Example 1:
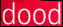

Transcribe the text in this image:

dood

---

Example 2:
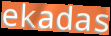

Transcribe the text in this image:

ekadas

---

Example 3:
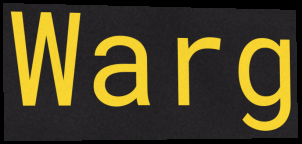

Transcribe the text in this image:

Warg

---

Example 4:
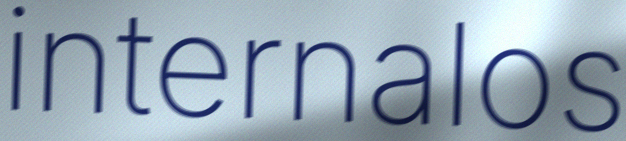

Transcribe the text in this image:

internalos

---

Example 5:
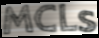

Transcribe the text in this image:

MCLs